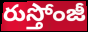
రుస్తోంజీ